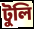
টুলি